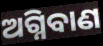
ଅଗ୍ନିବାଣ